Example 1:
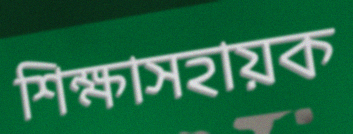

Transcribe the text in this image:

শিক্ষাসহায়ক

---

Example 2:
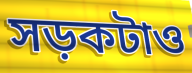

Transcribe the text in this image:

সড়কটাও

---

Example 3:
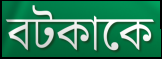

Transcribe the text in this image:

বটকাকে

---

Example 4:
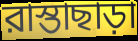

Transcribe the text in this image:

রাস্তাছাড়া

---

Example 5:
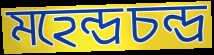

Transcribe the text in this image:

মহেন্দ্রচন্দ্র